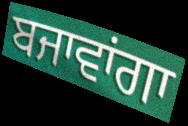
ਬਜਾਵਾਂਗਾ